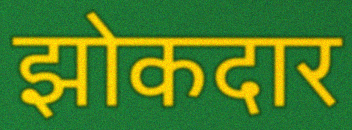
झोकदार